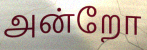
அன்றோ